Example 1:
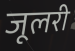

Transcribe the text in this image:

जूलरी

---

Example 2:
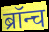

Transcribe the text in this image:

ब्रॉन्च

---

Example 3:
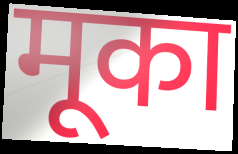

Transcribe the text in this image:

मूका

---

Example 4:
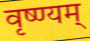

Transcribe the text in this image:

वृष्ण्यम्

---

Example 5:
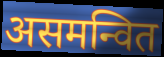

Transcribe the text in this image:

असमन्वित